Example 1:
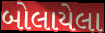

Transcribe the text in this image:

બોલાયેલા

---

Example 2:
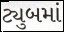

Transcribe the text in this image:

ટ્યુબમાં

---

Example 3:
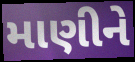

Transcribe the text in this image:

માણીને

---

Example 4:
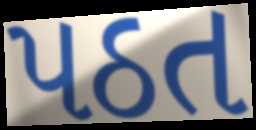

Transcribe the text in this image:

પઠત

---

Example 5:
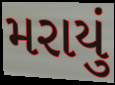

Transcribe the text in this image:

મરાયું